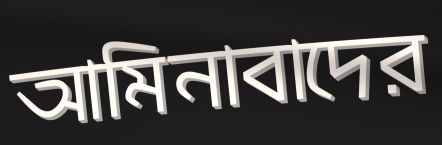
আমিনাবাদের